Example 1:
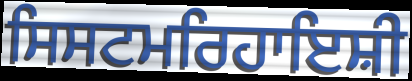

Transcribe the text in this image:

ਸਿਸਟਮਰਿਹਾਇਸ਼ੀ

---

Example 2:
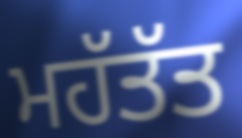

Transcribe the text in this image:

ਮਹੱਤੱਤ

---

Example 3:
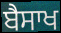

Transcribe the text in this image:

ਬੈਸਾਖ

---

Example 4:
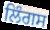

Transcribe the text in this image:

ਲਿੰਗਸ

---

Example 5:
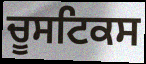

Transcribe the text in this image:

ਚੂਸਟਿਕਸ